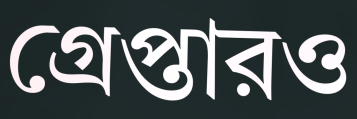
গ্রেপ্তারও